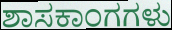
ಶಾಸಕಾಂಗಗಳು